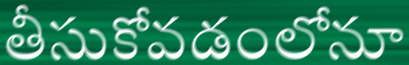
తీసుకోవడంలోనూ